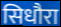
सिधौरा